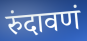
रुंदावणं